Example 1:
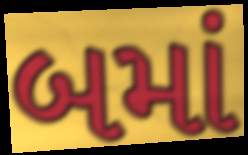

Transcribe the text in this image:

બમાં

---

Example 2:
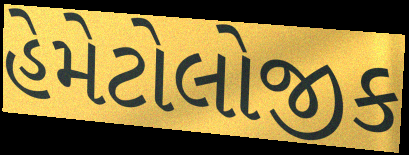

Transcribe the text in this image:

હેમેટોલોજીક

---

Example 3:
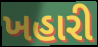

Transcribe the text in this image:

ખહારી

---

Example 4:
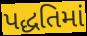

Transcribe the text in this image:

પદ્ધતિમાં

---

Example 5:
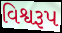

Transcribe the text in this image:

વિશ્વરૂપ